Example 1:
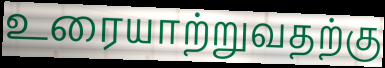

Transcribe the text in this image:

உரையாற்றுவதற்கு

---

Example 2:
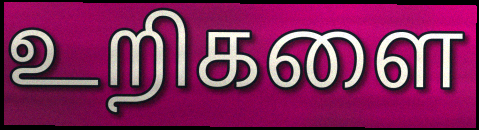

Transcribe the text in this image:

உறிகளை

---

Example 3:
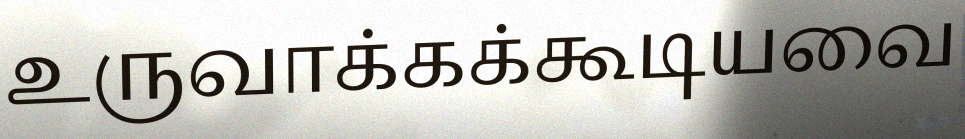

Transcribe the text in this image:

உருவாக்கக்கூடியவை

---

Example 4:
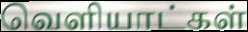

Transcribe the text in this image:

வெளியாட்கள்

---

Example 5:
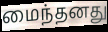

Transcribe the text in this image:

மைந்தனது